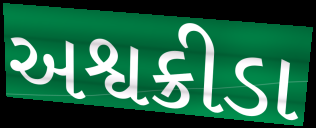
અશ્વક્રીડા